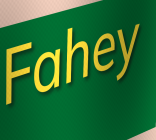
Fahey